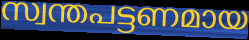
സ്വന്തപട്ടണമായ